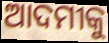
ଆଦମୀକୁ